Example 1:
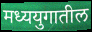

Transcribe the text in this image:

मध्ययुगातील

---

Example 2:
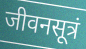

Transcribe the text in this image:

जीवनसूत्रं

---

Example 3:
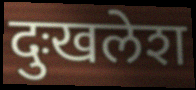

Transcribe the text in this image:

दुःखलेश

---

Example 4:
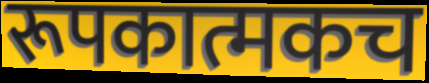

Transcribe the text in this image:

रूपकात्मकच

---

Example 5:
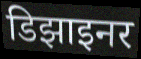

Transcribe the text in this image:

डिझाइनर